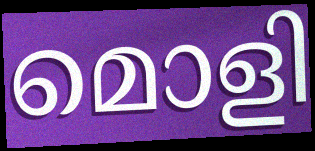
മൊളി